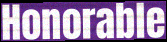
Honorable